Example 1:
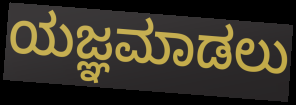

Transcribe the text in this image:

ಯಜ್ಞಮಾಡಲು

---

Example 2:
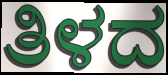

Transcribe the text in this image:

ತಿಳದ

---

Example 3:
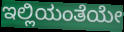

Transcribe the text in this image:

ಇಲ್ಲಿಯಂತೆಯೇ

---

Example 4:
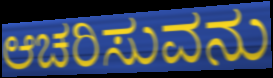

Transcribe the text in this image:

ಆಚರಿಸುವನು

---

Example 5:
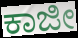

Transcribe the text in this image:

ಕಾಜೀ